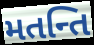
મતન્તિ